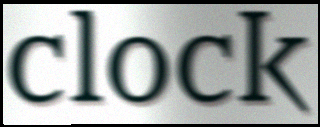
clock